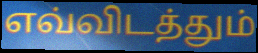
எவ்விடத்தும்